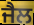
ਜੈਲ